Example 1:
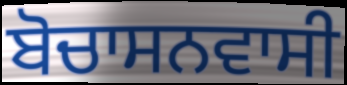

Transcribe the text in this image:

ਬੋਚਾਸਨਵਾਸੀ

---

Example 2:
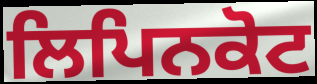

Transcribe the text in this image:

ਲਿਪਿਨਕੋਟ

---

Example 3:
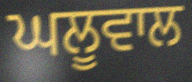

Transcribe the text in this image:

ਘਲੂਵਾਲ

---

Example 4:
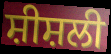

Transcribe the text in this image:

ਸ਼ੀਸ਼ਲੀ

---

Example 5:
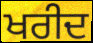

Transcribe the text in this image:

ਖਰੀਦ